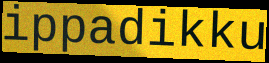
ippadikku